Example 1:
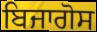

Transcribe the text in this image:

ਬਿਜਾਗੋਸ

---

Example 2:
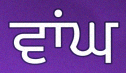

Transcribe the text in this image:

ਵਾਂਘ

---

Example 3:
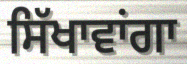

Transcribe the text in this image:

ਸਿੱਖਾਵਾਂਗਾ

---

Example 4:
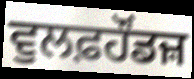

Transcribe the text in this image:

ਵੁਲਫ਼ਹੌਂਡਜ਼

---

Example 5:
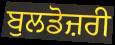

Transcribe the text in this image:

ਬੁਲਡੋਜ਼ਰੀ